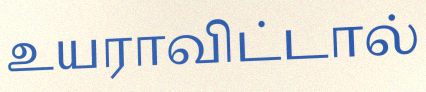
உயராவிட்டால்